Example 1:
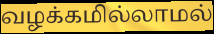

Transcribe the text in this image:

வழக்கமில்லாமல்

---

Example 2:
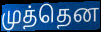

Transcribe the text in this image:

முத்தென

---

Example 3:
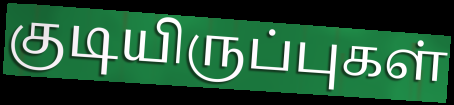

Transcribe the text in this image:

குடியிருப்புகள்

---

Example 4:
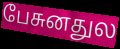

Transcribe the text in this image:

பேசுனதுல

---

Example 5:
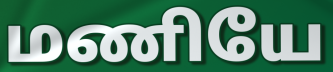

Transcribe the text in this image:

மணியே